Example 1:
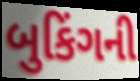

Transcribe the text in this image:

બુકિંગની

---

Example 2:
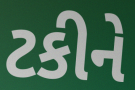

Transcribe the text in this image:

ટકીને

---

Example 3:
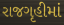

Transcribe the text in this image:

રાજગૃહીમાં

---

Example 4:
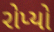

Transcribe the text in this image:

રોપ્યો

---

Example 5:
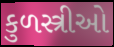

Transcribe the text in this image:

કુળસ્ત્રીઓ